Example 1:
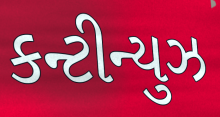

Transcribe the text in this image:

કન્ટીન્યુઝ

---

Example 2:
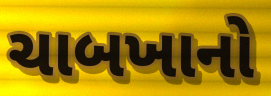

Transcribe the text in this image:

ચાબખાનો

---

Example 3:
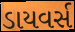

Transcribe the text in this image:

ડાયવર્સ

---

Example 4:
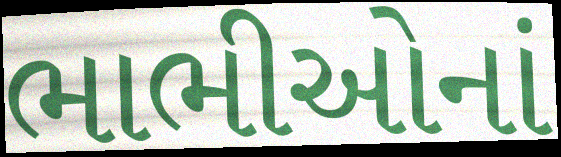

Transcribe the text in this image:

ભાભીઓનાં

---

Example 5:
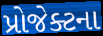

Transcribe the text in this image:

પ્રોજેક્ટના